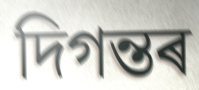
দিগন্তৰ